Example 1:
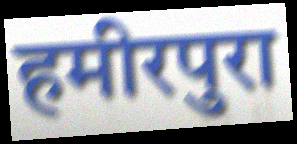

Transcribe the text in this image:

हमीरपुरा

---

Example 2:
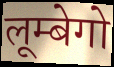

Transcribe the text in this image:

लूम्बेगो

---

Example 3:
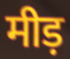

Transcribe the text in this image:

मीड़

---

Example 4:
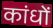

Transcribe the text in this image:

कांधों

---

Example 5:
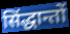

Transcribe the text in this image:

सिंद्धान्तों